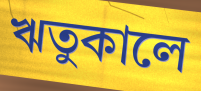
ঋতুকালে